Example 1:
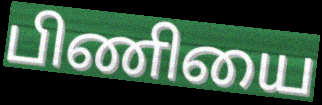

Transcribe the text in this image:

பிணியை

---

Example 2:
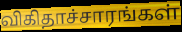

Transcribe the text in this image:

விகிதாச்சாரங்கள்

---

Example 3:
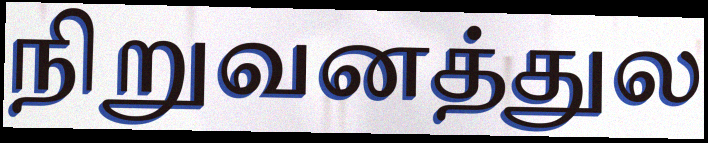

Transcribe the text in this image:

நிறுவனத்துல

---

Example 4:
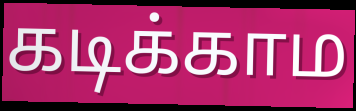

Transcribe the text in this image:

கடிக்காம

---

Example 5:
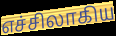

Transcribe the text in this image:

எச்சிலாகிய